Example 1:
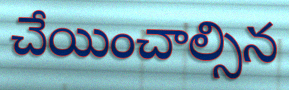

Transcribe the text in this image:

చేయించాల్సిన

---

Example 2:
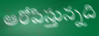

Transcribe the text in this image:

ఆరోపిస్తున్నది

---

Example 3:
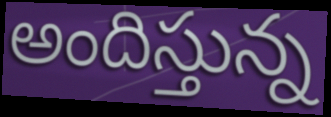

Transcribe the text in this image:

అందిస్తున్న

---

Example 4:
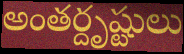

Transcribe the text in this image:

అంతర్దృష్టులు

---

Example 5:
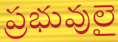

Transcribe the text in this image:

ప్రభువులై